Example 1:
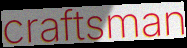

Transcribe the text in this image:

craftsman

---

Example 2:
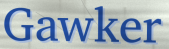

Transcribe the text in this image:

Gawker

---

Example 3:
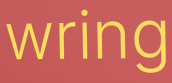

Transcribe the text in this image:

wring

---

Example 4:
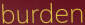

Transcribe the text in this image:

burden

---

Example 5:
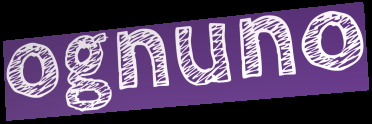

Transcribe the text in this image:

ognuno